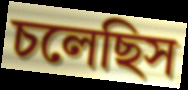
চলেছিস